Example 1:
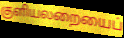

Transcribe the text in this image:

குளியலறையைப்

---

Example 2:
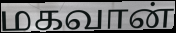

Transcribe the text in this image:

மகவான்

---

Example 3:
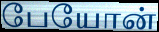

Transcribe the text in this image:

பேயோன்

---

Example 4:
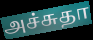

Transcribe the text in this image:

அச்சுதா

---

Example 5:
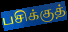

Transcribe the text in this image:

பசிக்குத்